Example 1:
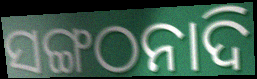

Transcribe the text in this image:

ସଙ୍ଗଠନାଦି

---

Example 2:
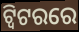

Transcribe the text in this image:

ଟ୍ବିଟରରେ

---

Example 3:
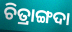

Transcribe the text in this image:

ଚିତ୍ରାଙ୍ଗଦା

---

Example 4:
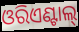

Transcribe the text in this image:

ଓରିଏଣ୍ଟାଲ୍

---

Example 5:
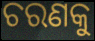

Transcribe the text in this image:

ଚରଣକୁ